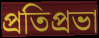
প্রতিপ্রভা